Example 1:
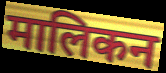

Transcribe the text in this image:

मालिकन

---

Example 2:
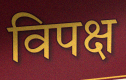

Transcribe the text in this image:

विपक्ष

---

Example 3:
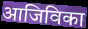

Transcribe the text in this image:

आजिविका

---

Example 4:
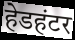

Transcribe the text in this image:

हेडहंटर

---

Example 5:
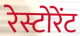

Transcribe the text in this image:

रेस्टोरेंट